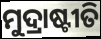
ମୁଦ୍ରାଷ୍ଟୀତି